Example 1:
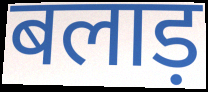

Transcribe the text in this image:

बलाड़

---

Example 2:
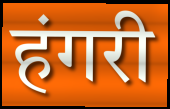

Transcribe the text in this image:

हंगरी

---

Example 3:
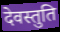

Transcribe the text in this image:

देवस्तुति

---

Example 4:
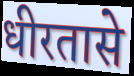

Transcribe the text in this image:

धीरतासे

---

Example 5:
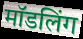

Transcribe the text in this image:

मॉडलिंग